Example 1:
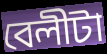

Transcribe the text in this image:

বেলীটা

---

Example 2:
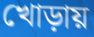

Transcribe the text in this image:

খোড়ায়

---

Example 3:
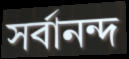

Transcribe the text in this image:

সর্বানন্দ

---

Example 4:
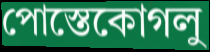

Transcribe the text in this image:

পোস্তেকোগলু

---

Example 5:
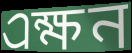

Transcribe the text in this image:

এক্ষন